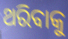
ଥରିବାକୁ